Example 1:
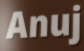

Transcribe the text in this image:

Anuj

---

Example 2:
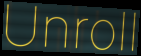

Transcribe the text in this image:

Unroll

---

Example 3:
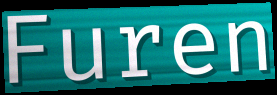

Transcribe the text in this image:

Furen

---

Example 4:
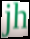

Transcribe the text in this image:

jh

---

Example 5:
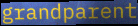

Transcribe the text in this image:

grandparent